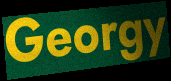
Georgy